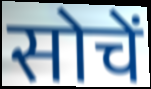
सोचें